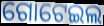
ଗୋଟେଇଲ